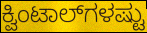
ಕ್ವಿಂಟಾಲ್‌ಗಳಷ್ಟು